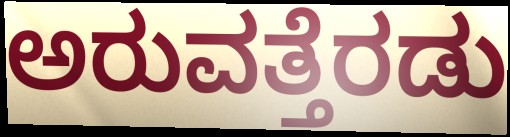
ಅರುವತ್ತೆರಡು